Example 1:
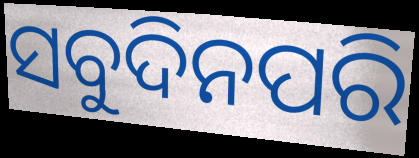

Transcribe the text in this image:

ସବୁଦିନପରି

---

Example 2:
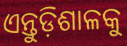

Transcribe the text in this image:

ଏନ୍ତୁଡ଼ିଶାଳକୁ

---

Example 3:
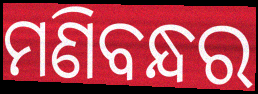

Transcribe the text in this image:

ମଣିବନ୍ଧର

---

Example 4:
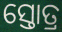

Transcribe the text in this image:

ସ୍ତୋତ୍ର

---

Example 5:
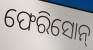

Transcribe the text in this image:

ଫେରିସୋନ୍